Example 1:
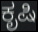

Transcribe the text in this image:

ಕೃಷಿ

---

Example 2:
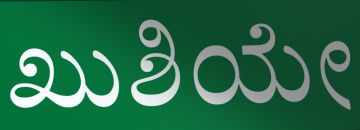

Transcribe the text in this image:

ಖುಶಿಯೇ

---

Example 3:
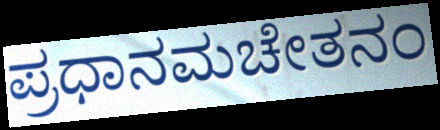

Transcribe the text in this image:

ಪ್ರಧಾನಮಚೇತನಂ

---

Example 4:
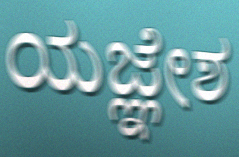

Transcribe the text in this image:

ಯಜ್ಞೇಶ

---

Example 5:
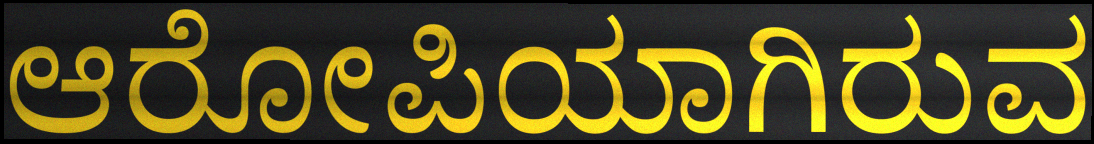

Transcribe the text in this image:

ಆರೋಪಿಯಾಗಿರುವ